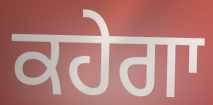
ਕਹੇਗਾ